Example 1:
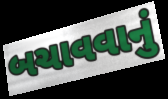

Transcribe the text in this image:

બચાવવાનું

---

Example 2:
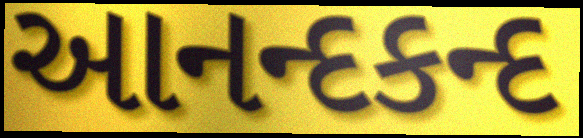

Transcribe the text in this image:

આનન્દકન્દ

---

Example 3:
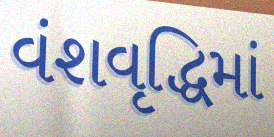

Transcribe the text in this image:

વંશવૃદ્ધિમાં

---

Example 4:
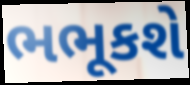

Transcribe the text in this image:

ભભૂકશે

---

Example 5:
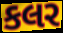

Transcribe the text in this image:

કલર